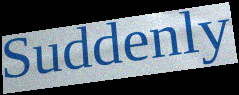
Suddenly